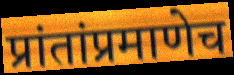
प्रांतांप्रमाणेच